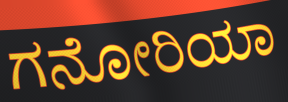
ಗನೋರಿಯಾ